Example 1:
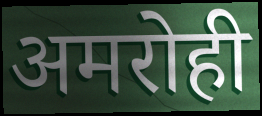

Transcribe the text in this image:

अमरोही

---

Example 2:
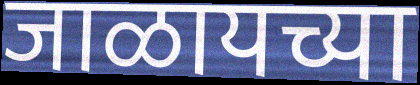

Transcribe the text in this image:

जाळायच्या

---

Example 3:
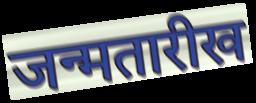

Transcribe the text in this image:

जन्मतारीख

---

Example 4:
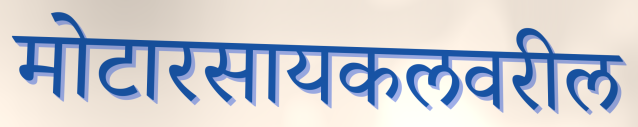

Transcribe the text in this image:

मोटारसायकलवरील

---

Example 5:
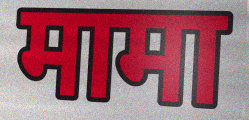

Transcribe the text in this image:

मामा